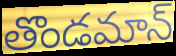
తొండమాన్